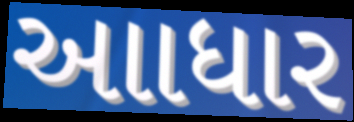
આાધાર